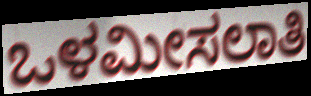
ಒಳಮೀಸಲಾತಿ